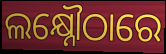
ଲକ୍ଷ୍ନୌଠାରେ